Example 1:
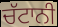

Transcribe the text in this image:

ਚੱਟਾਨੀ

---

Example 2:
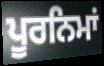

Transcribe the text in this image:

ਪੂਰਨਿਮਾਂ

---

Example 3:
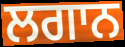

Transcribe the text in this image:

ਲਗਾਨ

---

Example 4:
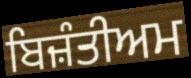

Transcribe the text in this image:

ਬਿਜ਼ੰਤੀਅਮ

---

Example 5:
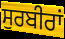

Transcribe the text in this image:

ਸੁਰਬੀਰਾਂ